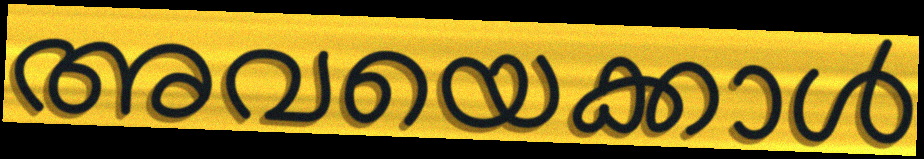
അവയെക്കാൾ